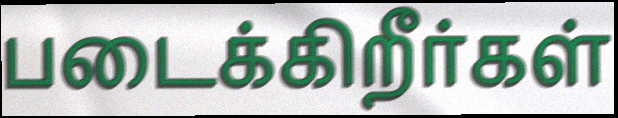
படைக்கிறீர்கள்